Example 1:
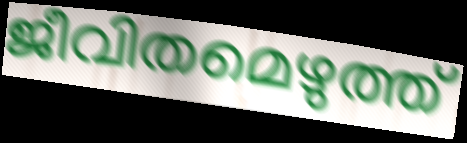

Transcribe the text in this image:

ജീവിതമെഴുത്ത്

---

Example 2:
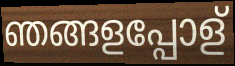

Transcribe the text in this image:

ഞങ്ങളപ്പോള്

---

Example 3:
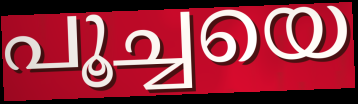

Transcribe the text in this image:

പൂച്ചയെ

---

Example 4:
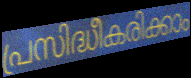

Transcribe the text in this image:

പ്രസിദ്ധീകരിക്കാം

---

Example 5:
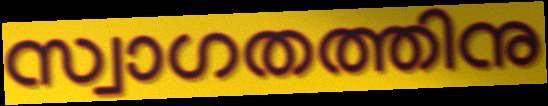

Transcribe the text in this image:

സ്വാഗതത്തിനു